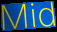
Mid